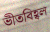
ভীতবিহ্বল